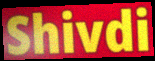
Shivdi